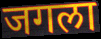
जगला